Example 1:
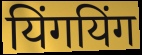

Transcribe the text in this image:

यिंगयिंग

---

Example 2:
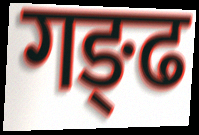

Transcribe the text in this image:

गङ्ढ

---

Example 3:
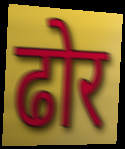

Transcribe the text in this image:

ढोर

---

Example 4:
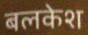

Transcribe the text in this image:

बलकेश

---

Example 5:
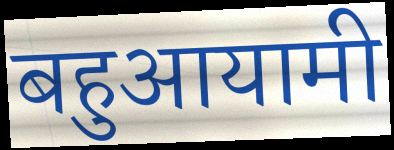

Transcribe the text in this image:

बहुआयामी